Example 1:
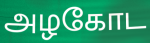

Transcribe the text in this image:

அழகோட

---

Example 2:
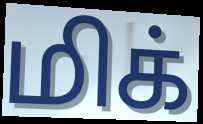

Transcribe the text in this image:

மிக்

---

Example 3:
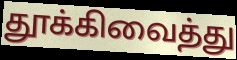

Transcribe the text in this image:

தூக்கிவைத்து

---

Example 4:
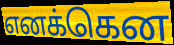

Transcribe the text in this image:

எனக்கென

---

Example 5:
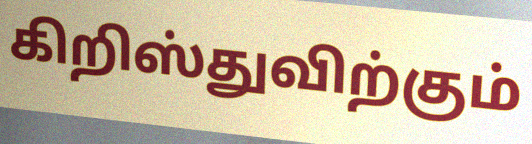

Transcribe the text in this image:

கிறிஸ்துவிற்கும்